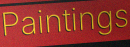
Paintings